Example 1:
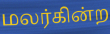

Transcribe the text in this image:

மலர்கின்ற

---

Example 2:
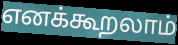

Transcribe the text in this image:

எனக்கூறலாம்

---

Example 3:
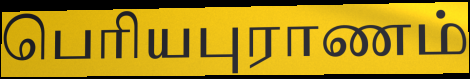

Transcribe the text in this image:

பெரியபுராணம்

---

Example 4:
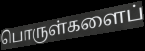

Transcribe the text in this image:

பொருள்களைப்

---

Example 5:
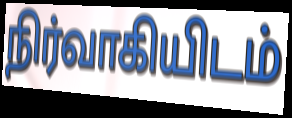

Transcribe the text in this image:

நிர்வாகியிடம்